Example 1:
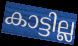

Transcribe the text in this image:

കാട്ടില്ല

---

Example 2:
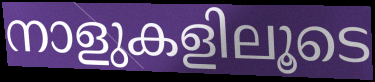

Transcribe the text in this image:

നാളുകളിലൂടെ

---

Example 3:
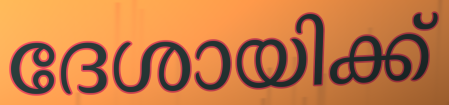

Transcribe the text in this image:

ദേശായിക്ക്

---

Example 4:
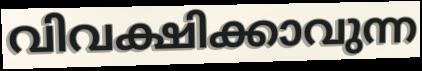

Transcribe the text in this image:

വിവക്ഷിക്കാവുന്ന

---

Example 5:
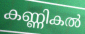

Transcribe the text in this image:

കണ്ണികൽ